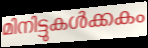
മിനിട്ടുകൾക്കകം